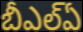
బీఎల్ఏ